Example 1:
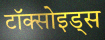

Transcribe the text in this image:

टॉक्सोइड्स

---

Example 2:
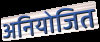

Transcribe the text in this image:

अनियोजित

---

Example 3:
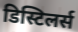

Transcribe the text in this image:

डिस्टिलर्स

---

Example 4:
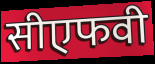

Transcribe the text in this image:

सीएफवी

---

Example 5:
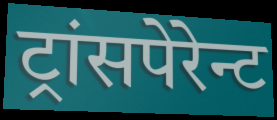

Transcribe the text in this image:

ट्रांसपेरेन्ट